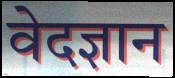
वेदज्ञान